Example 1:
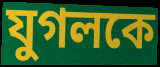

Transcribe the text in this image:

যুগলকে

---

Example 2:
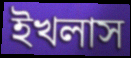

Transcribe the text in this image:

ইখলাস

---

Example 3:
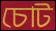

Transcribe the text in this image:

চোট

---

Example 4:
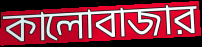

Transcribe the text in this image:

কালোবাজার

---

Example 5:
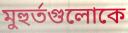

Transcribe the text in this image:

মুহুর্তগুলোকে